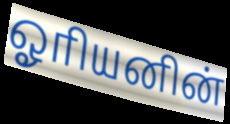
ஓரியனின்